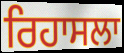
ਰਿਹਾਸਲਾ